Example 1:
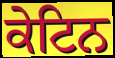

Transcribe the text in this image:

ਕੇਟਿਨ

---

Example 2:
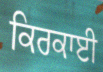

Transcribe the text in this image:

ਕਿਰਕਾਈ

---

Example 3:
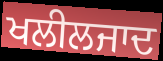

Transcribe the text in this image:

ਖਲੀਲਜਾਦ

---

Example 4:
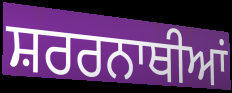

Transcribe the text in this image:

ਸ਼ਰਰਨਾਥੀਆਂ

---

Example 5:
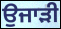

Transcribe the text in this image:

ਉਜਾੜੀ